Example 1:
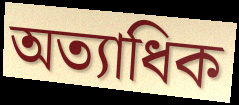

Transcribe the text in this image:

অত্যাধিক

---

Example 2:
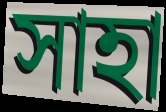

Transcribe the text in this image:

সাহা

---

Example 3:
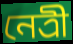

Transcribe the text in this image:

নেত্ৰী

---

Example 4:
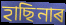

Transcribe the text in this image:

হাছিনাৰ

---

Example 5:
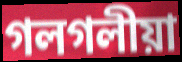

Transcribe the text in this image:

গলগলীয়া